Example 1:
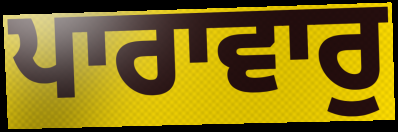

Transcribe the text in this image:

ਪਾਰਾਵਾਰੁ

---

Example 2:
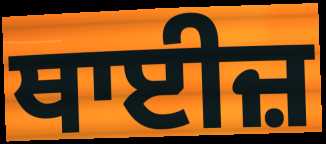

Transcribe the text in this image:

ਥਾਈਜ਼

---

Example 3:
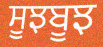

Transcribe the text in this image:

ਸੂਝਬੂਝ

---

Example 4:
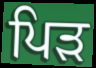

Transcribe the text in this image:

ਪਿੜ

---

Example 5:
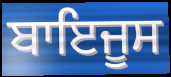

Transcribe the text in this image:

ਬਾਇਜੂਸ